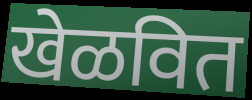
खेळवित